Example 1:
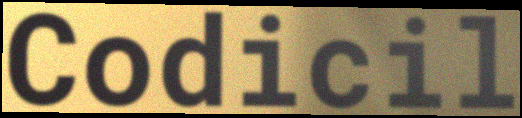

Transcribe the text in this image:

Codicil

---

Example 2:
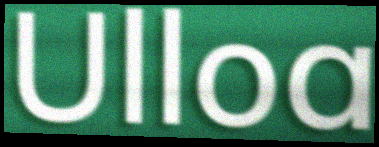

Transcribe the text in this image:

Ulloa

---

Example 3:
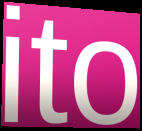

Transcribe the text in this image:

ito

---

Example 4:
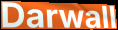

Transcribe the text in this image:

Darwall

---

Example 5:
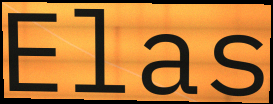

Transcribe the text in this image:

Elas